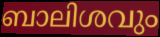
ബാലിശവും